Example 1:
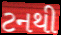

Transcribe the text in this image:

ટનથી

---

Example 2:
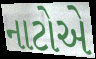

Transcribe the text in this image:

નાટોએ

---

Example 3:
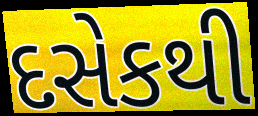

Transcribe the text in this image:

દસેકથી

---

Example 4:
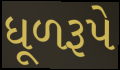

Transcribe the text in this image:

ધૂળરૂપે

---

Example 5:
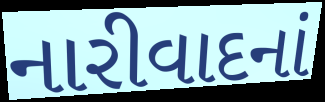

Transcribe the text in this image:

નારીવાદનાં